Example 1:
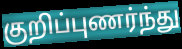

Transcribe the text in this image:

குறிப்புணர்ந்து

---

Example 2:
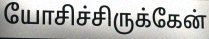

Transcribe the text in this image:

யோசிச்சிருக்கேன்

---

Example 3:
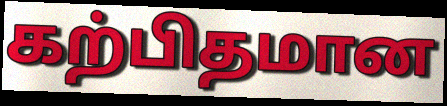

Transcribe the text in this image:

கற்பிதமான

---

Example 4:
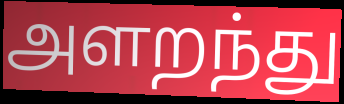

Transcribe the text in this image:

அளறந்து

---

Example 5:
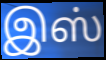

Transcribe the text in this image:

இஸ்